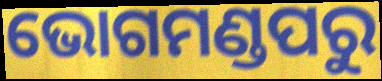
ଭୋଗମଣ୍ଡପରୁ